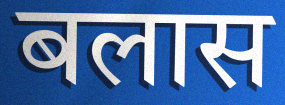
बलास